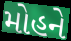
મોહને